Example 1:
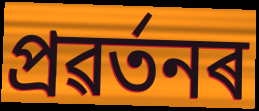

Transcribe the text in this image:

প্ৰৱৰ্তনৰ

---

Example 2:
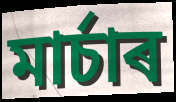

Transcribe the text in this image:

মাৰ্চাৰ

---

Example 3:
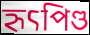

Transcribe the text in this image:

হৃৎপিণ্ড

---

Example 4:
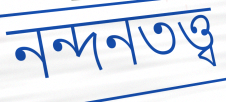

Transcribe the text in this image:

নন্দনতত্ত্ব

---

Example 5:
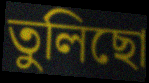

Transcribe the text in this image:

তুলিছো